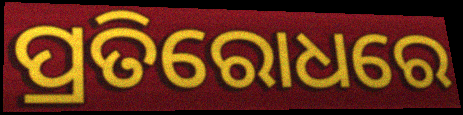
ପ୍ରତିରୋଧରେ